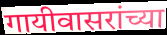
गायीवासरांच्या